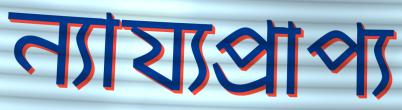
ন্যায্যপ্রাপ্য